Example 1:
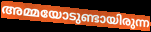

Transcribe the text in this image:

അമ്മയോടുണ്ടായിരുന്ന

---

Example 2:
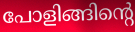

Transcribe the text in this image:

പോളിങ്ങിന്റെ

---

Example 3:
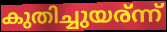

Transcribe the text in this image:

കുതിച്ചുയര്ന്ന്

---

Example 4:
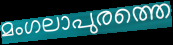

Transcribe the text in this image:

മംഗലാപുരത്തെ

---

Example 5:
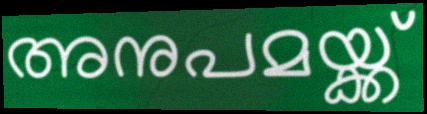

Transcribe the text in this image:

അനുപമയ്ക്ക്